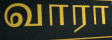
வாரா